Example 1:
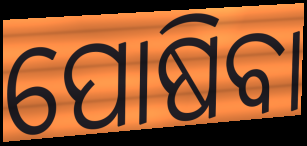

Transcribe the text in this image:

ପୋଷିବା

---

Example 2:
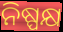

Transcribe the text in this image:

ନିଷ୍ପକ୍ଷ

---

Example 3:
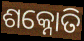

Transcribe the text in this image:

ଶକ୍ନୋତି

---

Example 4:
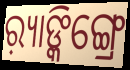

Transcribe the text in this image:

ର଼୍ୟାଙ୍କିଙ୍ଗ୍ରେ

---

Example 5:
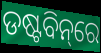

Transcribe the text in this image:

ଡଷ୍ଟବିନ୍‌ରେ